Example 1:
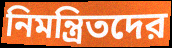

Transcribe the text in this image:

নিমন্ত্রিতদের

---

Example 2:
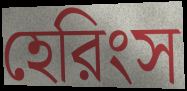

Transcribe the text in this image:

হেরিংস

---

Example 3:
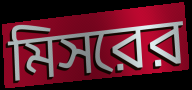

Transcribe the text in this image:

মিসরের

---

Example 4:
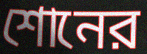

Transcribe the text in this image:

শোনের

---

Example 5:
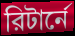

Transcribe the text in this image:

রিটার্নে